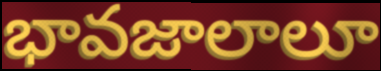
భావజాలాలూ